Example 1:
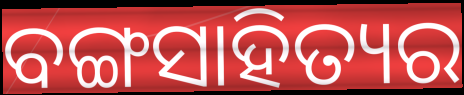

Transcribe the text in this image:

ବଙ୍ଗସାହିତ୍ୟର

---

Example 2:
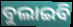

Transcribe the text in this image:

ବୁଲାଇବି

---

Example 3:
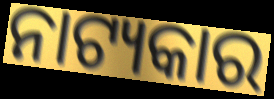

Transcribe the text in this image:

ନାଟ୍ଯକାର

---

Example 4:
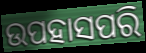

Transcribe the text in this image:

ଉପହାସପରି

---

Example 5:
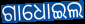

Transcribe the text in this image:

ଗାଧୋଇଲ